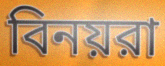
বিনয়রা